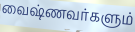
வைஷ்ணவர்களும்